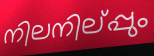
നിലനില്പ്പും